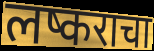
लष्कराचा